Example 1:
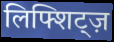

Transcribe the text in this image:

लिफ्शिट्ज़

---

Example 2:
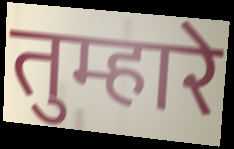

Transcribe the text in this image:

तुम्हारे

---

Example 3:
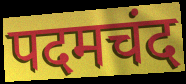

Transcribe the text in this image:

पदमचंद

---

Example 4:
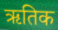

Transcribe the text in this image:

ऋतिक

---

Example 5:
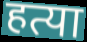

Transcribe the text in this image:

हत्या